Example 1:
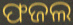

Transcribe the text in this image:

ଫଜଲ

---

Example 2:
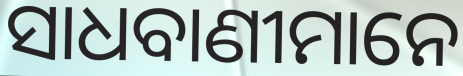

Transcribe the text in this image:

ସାଧବାଣୀମାନେ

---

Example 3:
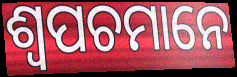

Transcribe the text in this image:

ଶ୍ୱପଚମାନେ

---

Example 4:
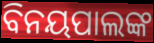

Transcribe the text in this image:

ବିନୟପାଲଙ୍କ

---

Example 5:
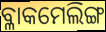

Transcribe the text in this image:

ବ୍ଳାକମେଲିଙ୍ଗ